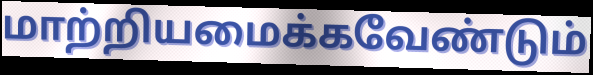
மாற்றியமைக்கவேண்டும்